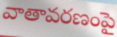
వాతావరణంపై